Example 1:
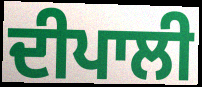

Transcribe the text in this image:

ਦੀਪਾਲੀ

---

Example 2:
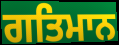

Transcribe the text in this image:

ਗਤਿਮਾਨ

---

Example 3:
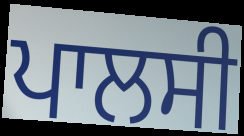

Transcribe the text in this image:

ਪਾਲਸੀ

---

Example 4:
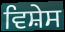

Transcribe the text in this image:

ਵਿਸ਼ੇਸ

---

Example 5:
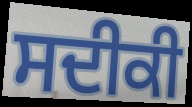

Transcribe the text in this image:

ਸਦੀਕੀ